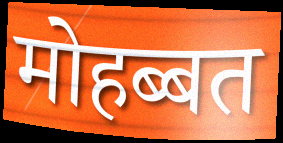
मोहब्बत